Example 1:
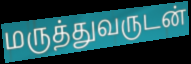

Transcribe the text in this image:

மருத்துவருடன்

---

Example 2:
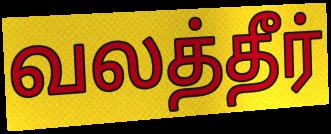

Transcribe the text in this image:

வலத்தீர்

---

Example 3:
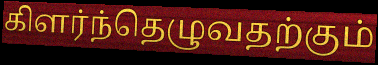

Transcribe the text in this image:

கிளர்ந்தெழுவதற்கும்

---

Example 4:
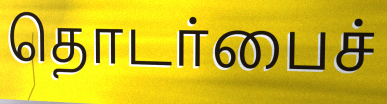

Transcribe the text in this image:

தொடர்பைச்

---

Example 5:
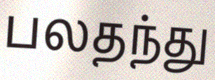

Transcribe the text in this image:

பலதந்து